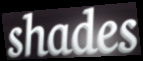
shades